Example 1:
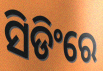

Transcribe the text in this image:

ସିଡିଂରେ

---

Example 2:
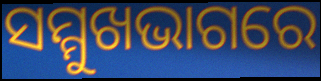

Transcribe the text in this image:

ସମ୍ମୁଖଭାଗରେ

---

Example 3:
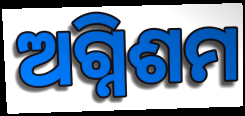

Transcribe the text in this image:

ଅଗ୍ନିଶମ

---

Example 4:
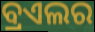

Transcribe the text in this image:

ବ୍ରଏଲର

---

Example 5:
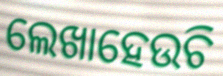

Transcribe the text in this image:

ଲେଖାହେଉଚି